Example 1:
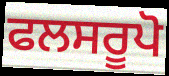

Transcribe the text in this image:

ਫਲਸਰੂਪੋ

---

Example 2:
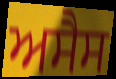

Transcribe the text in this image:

ਅਸੈਸ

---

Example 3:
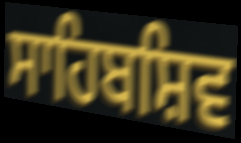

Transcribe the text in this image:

ਸਾਹਿਬਸ਼ਿਵ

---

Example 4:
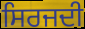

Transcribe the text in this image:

ਸਿਰਜਦੀ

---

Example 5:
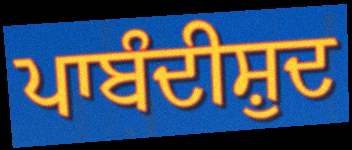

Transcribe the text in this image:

ਪਾਬੰਦੀਸ਼ੁਦ